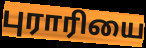
புராரியை